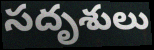
సదృశులు